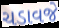
ચડાવજે